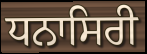
ਧਨਾਸਿਰੀ